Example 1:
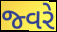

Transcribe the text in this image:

જ્વરે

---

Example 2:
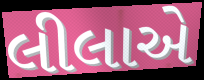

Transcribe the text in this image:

લીલાએ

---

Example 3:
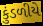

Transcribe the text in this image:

કુંડળીયે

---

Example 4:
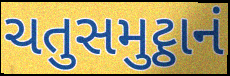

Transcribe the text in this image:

ચતુસમુટ્ઠાનં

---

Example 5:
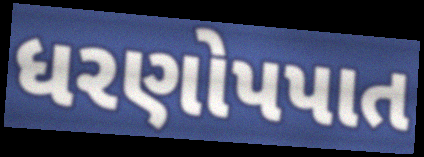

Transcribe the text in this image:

ધરણોપપાત